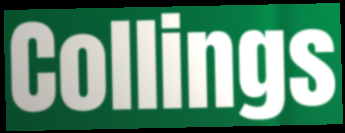
Collings